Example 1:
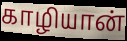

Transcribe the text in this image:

காழியான்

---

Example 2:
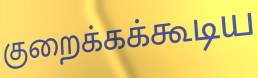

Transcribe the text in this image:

குறைக்கக்கூடிய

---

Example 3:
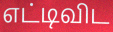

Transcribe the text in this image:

எட்டிவிட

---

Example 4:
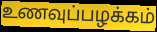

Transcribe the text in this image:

உணவுப்பழக்கம்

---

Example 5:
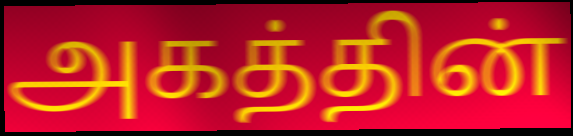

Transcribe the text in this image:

அகத்தின்